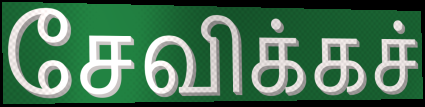
சேவிக்கச்